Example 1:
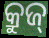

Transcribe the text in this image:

କ୍ରୁଜ୍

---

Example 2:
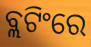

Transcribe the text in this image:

ବ୍ଲଟିଂରେ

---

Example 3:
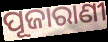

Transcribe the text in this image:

ପୂଜାରାଣୀ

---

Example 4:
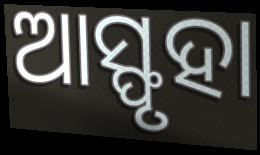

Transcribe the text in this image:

ଆସ୍ଫୃହା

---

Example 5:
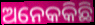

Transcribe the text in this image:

ଅନେକକିଛି